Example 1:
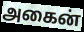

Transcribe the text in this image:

அகைன்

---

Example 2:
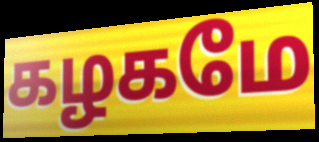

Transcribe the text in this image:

கழகமே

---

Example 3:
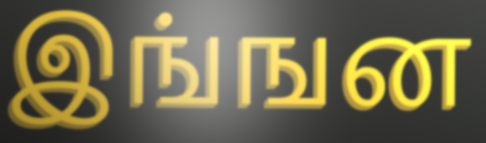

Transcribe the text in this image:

இங்ஙன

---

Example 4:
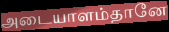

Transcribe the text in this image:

அடையாளம்தானே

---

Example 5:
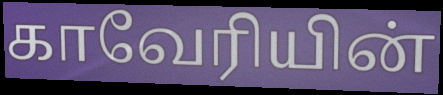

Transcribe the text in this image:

காவேரியின்